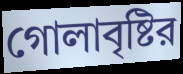
গোলাবৃষ্টির